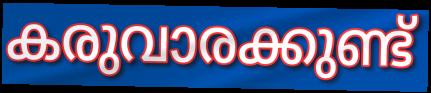
കരുവാരക്കുണ്ട്